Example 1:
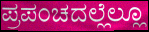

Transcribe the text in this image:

ಪ್ರಪಂಚದಲ್ಲೆಲ್ಲೂ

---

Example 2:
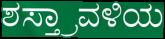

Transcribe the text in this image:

ಶಸ್ತ್ರಾವಳಿಯ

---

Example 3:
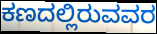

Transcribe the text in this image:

ಕಣದಲ್ಲಿರುವವರ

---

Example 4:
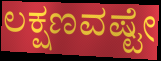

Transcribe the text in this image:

ಲಕ್ಷಣವಷ್ಟೇ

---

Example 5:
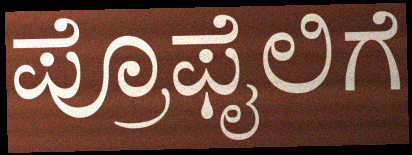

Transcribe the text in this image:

ಪ್ರೊಫೈಲಿಗೆ